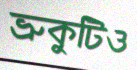
ভ্রুকুটিও